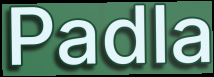
Padla